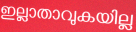
ഇല്ലാതാവുകയില്ല